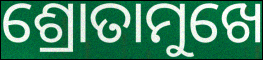
ଶ୍ରୋତାମୁଖେ